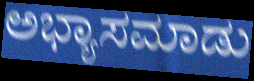
ಅಭ್ಯಾಸಮಾಡು